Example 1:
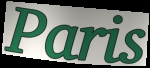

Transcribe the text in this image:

Paris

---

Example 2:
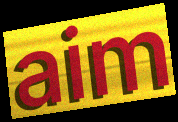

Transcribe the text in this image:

aim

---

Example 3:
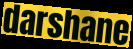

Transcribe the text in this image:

darshane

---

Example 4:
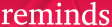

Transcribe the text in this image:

reminds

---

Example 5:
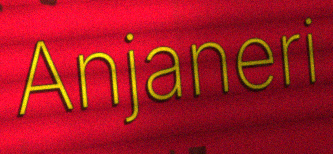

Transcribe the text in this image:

Anjaneri